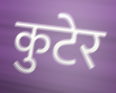
कुटेर